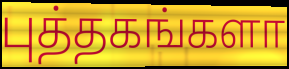
புத்தகங்களா